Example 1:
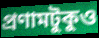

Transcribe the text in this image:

প্রণামটুকুও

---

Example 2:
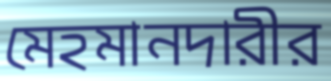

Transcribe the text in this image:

মেহমানদারীর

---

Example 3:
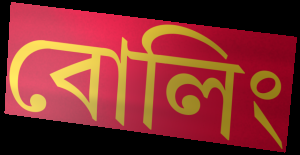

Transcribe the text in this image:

বোলিং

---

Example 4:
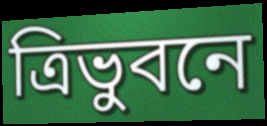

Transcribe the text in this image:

ত্রিভুবনে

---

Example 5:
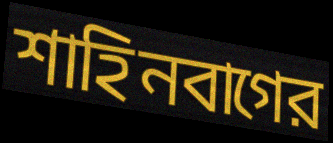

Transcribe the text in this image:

শাহিনবাগের